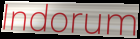
Indorum